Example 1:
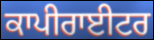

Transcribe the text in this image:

ਕਾਪੀਰਾਈਟਰ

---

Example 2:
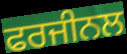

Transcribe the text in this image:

ਫਰਜੀਨਲ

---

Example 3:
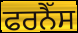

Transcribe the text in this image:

ਫਰਨੈੱਸ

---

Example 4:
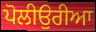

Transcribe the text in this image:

ਪੋਲੀਉਰੀਆ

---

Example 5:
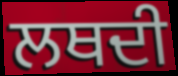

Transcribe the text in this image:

ਲਥਦੀ